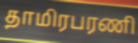
தாமிரபரணி